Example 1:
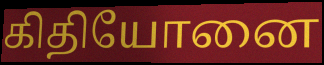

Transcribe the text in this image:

கிதியோனை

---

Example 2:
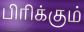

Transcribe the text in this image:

பிரிக்கும்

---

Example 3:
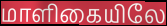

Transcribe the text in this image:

மாளிகையிலே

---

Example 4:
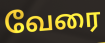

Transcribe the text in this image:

வேரை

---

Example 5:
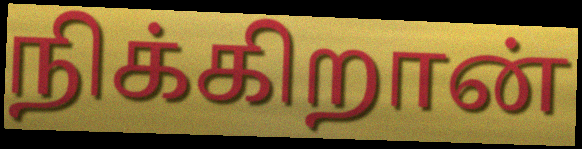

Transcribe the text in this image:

நிக்கிறான்